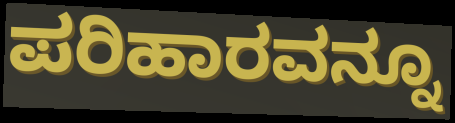
ಪರಿಹಾರವನ್ನೂ